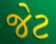
જેટ